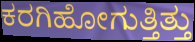
ಕರಗಿಹೋಗುತ್ತಿತ್ತು